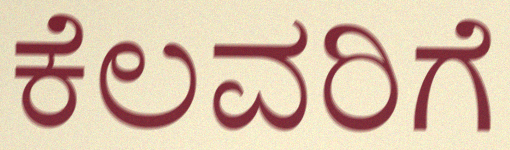
ಕೆಲವರಿಗೆ